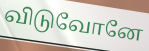
விடுவோனே